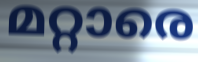
മറ്റാരെ